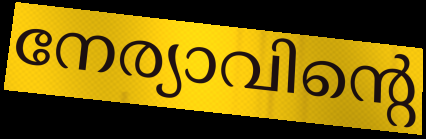
നേര്യാവിന്റെ